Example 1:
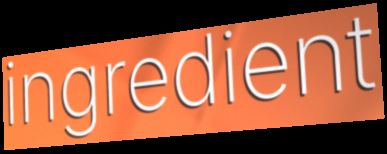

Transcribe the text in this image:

ingredient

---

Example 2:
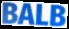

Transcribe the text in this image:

BALB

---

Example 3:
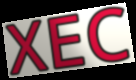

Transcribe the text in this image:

XEC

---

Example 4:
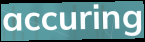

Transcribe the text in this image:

accuring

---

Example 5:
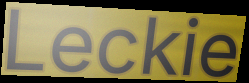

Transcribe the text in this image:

Leckie